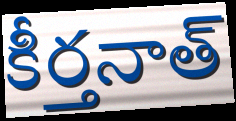
కీర్తనాత్